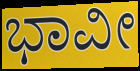
ಭಾವೀ